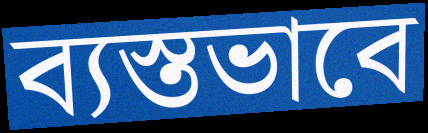
ব্যস্তভাবে